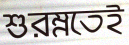
শুরম্নতেই